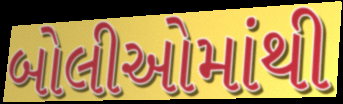
બોલીઓમાંથી